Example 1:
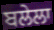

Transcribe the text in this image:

ਬਲੇਲਾ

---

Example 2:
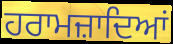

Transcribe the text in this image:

ਹਰਾਮਜ਼ਾਦਿਆਂ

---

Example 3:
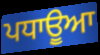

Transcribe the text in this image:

ਪਧਾਊਆ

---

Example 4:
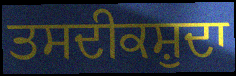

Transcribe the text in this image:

ਤਸਦੀਕਸ਼ੁਦਾ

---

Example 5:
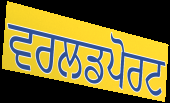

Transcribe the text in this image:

ਵਰਲਡਪੋਰਟ